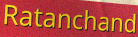
Ratanchand